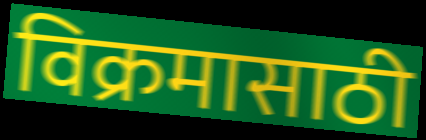
विक्रमासाठी